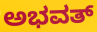
ಅಭವತ್